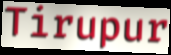
Tirupur